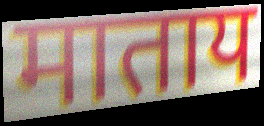
माताय